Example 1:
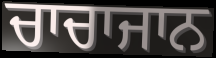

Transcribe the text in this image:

ਚਾਚਾਜਾਨ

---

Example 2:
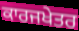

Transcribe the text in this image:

ਕਾਰਜਖੇਤਰ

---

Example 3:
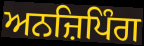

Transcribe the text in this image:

ਅਨਜ਼ਿਪਿੰਗ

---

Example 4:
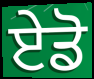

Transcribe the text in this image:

ਏਡੋ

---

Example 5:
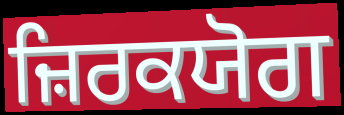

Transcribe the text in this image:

ਜ਼ਿਰਕਯੋਗ